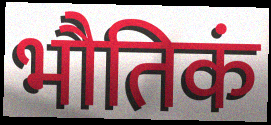
भौतिकं